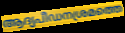
ആദ്യപീഡനശ്രമത്തെ